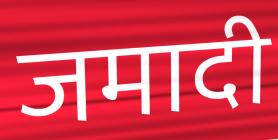
जमादी